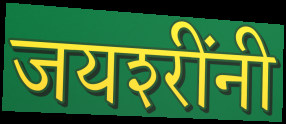
जयश्रींनी